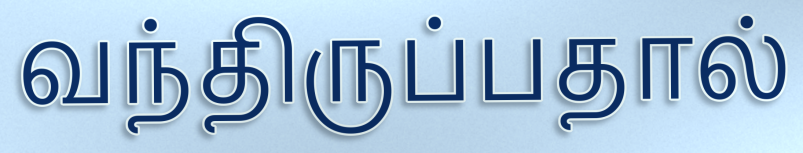
வந்திருப்பதால்